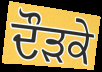
ਦੌੜਕੇ